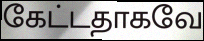
கேட்டதாகவே